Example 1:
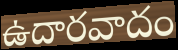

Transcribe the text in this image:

ఉదారవాదం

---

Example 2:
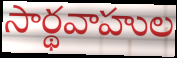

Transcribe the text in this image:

సార్థవాహుల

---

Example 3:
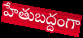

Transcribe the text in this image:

హేతుబద్దంగా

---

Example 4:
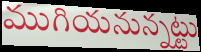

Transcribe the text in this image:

ముగియనున్నట్టు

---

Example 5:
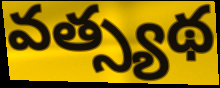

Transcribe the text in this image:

వత్స్యథ